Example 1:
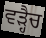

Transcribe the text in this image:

ਵੜ੍ਹੈਚ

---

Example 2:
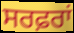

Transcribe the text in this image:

ਸਰਫ਼ਰਾਂ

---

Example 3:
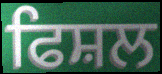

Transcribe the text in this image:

ਫਿਸ਼ਲ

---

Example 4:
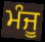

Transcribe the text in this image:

ਮੰਜੂ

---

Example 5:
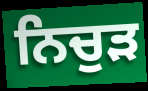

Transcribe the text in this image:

ਨਿਚੁੜ